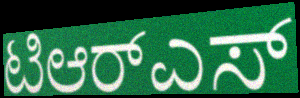
ಟಿಆರ್‌ಎಸ್